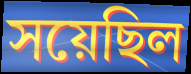
সয়েছিল